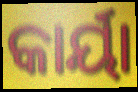
କାର୍ୟା